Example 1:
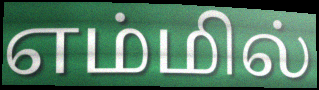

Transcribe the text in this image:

எம்மில்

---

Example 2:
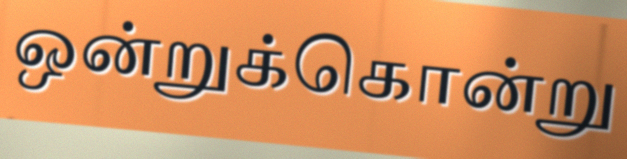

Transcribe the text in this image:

ஒன்றுக்கொன்று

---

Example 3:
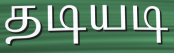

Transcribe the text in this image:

தடியடி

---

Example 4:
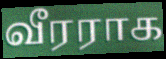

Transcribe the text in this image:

வீரராக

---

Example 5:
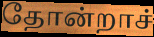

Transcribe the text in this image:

தோன்றாச்